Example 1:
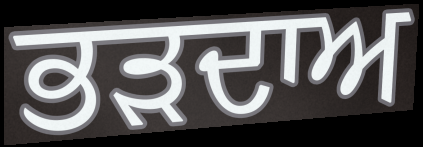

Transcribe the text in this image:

ਭੜਦਾਅ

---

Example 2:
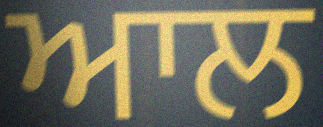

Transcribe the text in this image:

ਆਲ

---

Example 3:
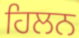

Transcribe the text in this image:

ਹਿਲਨ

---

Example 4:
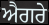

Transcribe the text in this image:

ਐਗਰੇ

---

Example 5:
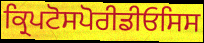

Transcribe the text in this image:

ਕ੍ਰਿਪਟੋਸਪੋਰੀਡੀਓਸਿਸ